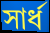
সার্ধ